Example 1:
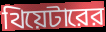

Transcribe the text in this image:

থিয়েটারের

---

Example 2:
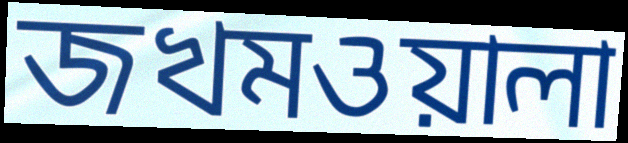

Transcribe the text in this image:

জখমওয়ালা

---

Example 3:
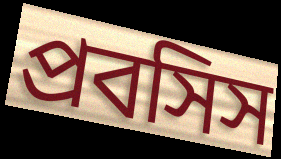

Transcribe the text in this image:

প্রবসিস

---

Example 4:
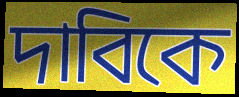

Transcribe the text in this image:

দাবিকে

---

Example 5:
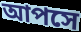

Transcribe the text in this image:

আপসে